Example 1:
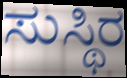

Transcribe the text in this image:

ಸುಸ್ಥಿರ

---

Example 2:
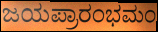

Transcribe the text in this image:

ಜಯಪ್ರಾರಂಭಮಂ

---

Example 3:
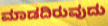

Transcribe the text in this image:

ಮಾಡದಿರುವುದು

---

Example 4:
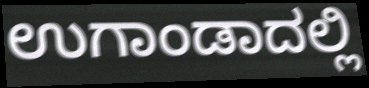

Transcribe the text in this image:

ಉಗಾಂಡಾದಲ್ಲಿ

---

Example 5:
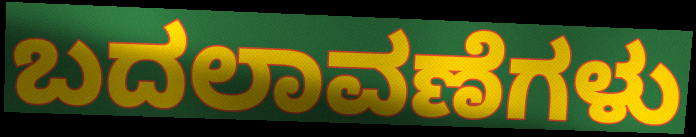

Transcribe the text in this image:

ಬದಲಾವಣೆಗಳು